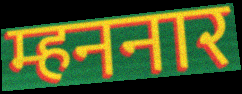
म्हननार